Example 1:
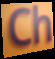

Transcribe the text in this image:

Ch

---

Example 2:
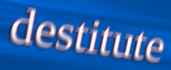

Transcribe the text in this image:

destitute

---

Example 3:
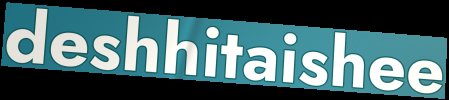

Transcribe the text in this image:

deshhitaishee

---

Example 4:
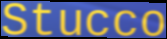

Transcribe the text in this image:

Stucco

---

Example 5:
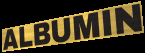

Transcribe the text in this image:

ALBUMIN